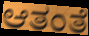
ಆತಂತೆ